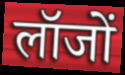
लॉजों